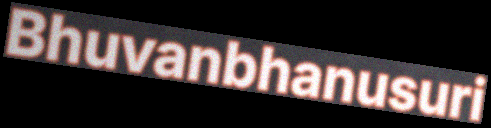
Bhuvanbhanusuri